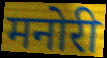
मनोरी